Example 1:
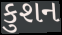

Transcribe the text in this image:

કુશન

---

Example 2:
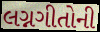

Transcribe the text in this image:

લગ્નગીતોની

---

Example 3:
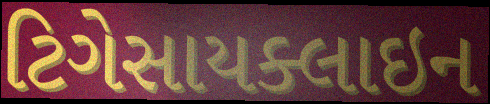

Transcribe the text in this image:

ટિગેસાયક્લાઇન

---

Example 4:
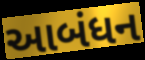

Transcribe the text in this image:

આબંધન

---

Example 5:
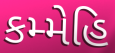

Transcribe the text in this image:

કમ્મેહિ